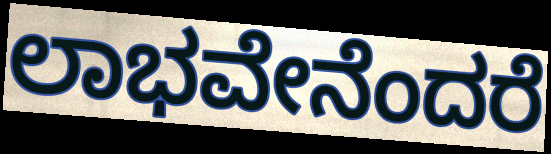
ಲಾಭವೇನೆಂದರೆ